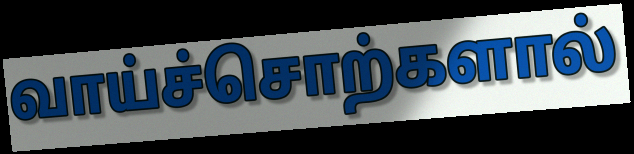
வாய்ச்சொற்களால்